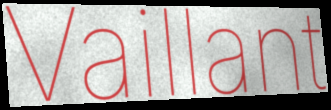
Vaillant